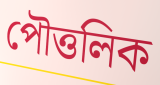
পৌত্তলিক